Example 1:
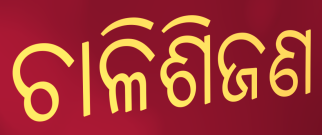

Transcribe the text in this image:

ଚାଳିଶିଜଣ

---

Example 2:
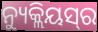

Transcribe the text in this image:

ନ୍ୟୁକ୍ଲିୟସ୍‌ର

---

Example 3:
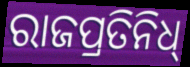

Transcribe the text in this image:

ରାଜପ୍ରତିନିଧ୍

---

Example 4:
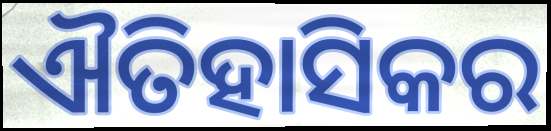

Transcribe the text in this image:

ଐତିହାସିକର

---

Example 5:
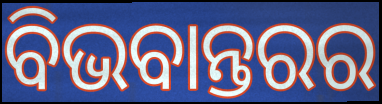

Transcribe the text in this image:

ବିଭବାନ୍ତରର